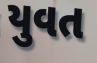
યુવત